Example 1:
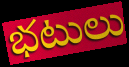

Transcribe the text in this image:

భటులు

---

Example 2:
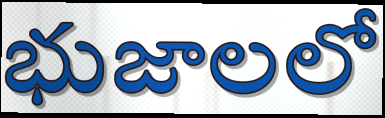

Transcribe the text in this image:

భుజాలలో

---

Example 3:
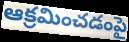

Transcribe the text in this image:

ఆక్రమించడంపై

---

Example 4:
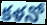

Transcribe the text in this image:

కళనో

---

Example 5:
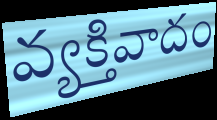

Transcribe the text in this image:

వ్యక్తివాదం